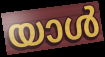
യാൾ